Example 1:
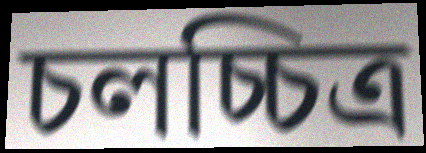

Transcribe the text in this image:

চলচ্চিত্ৰ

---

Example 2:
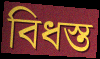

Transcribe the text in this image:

বিধস্ত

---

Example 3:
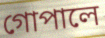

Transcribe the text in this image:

গোপালে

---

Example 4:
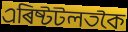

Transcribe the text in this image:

এৰিষ্টটলতকৈ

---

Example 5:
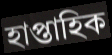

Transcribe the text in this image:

হাপ্তাহিক